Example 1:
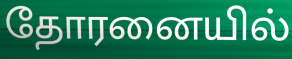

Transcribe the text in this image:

தோரனையில்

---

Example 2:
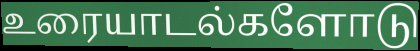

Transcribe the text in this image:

உரையாடல்களோடு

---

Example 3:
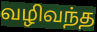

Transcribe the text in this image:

வழிவந்த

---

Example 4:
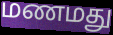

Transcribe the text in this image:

மணமது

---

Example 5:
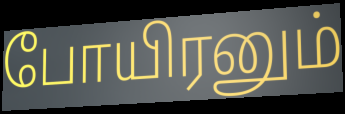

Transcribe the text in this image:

போயிரனும்